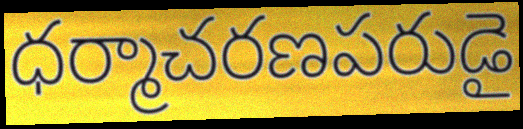
ధర్మాచరణపరుడై